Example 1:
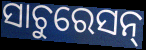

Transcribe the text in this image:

ସାଚୁରେସନ୍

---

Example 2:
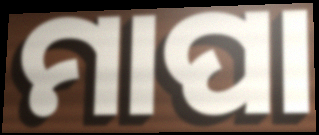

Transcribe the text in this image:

ମାପା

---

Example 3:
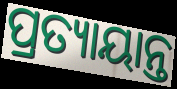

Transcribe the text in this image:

ପ୍ରତ୍ୟାୟାନ୍ତ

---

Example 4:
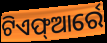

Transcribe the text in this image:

ଟିଏଫ୍ଆର୍ରେ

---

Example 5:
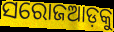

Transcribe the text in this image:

ସରୋଜଆଡ଼କୁ